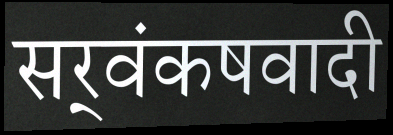
सर्वंकषवादी